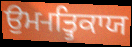
ਉਮ੍ਮਤ੍ਤਿਕਾਯ